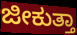
ಜೀಕುತ್ತಾ